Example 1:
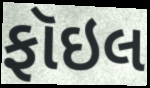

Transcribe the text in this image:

ફૉઇલ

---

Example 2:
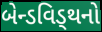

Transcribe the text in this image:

બેન્ડવિડ્થનો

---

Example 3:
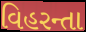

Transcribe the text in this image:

વિહરન્તા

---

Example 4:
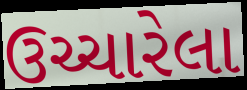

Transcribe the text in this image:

ઉચ્ચારેલા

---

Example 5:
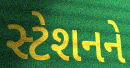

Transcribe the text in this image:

સ્ટેશનને